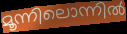
മൂന്നിലൊന്നിൽ